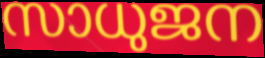
സാധുജന